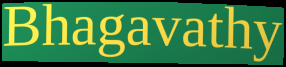
Bhagavathy